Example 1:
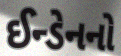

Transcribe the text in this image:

ઈન્ડેનનો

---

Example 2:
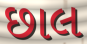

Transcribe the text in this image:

છાલ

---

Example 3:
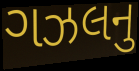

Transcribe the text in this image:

ગઝલનુ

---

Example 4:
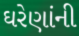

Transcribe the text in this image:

ઘરેણાંની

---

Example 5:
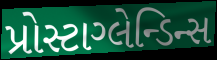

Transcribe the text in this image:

પ્રોસ્ટાગ્લેન્ડિન્સ